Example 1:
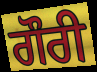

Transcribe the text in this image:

ਗੌਰੀ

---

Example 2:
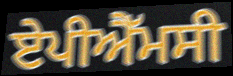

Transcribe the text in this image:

ਏਪੀਐੱਮਸੀ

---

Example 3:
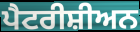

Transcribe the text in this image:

ਪੈਟਰੀਸ਼ੀਅਨ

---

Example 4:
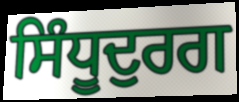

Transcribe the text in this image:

ਸਿੰਧੂਦੁਰਗ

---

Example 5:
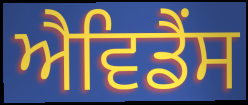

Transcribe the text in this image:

ਐਵਿਡੈਂਸ